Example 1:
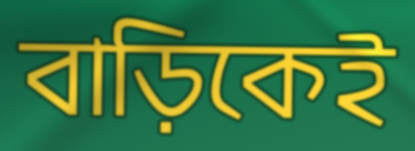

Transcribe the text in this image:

বাড়িকেই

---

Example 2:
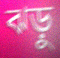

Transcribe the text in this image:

ঝড়ু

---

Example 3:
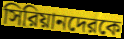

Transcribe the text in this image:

সিরিয়ানদেরকে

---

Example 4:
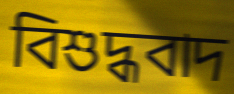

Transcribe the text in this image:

বিশুদ্ধবাদ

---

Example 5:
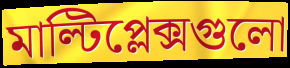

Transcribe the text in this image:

মাল্টিপ্লেক্সগুলো